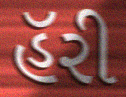
હૅરી